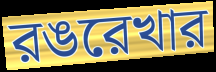
রঙরেখার